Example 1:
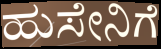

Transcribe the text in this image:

ಹುಸೇನಿಗೆ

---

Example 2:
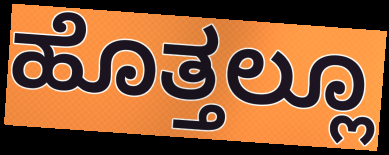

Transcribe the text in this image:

ಹೊತ್ತಲ್ಲೂ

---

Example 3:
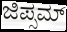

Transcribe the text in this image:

ಜಿಪ್ಸಮ್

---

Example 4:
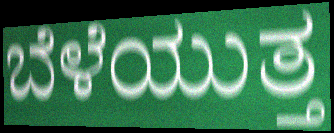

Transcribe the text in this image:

ಬೆಳೆಯುತ್ತ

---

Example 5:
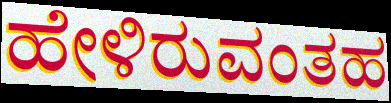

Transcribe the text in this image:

ಹೇಳಿರುವಂತಹ